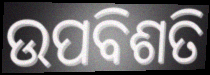
ଉପବିଶତି